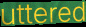
uttered